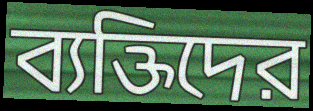
ব্যক্তিদের